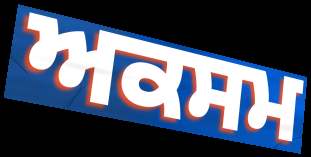
ਅਕਸਮ